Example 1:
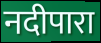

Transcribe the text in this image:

नदीपारा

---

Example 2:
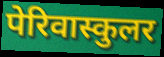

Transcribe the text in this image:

पेरिवास्कुलर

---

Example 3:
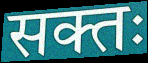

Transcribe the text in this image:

सक्तः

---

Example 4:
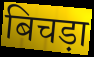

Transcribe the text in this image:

बिचड़ा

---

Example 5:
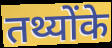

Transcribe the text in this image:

तथ्योंके